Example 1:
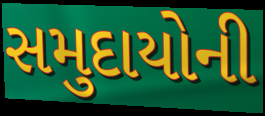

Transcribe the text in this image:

સમુદાયોની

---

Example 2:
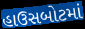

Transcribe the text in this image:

હાઉસબોટમાં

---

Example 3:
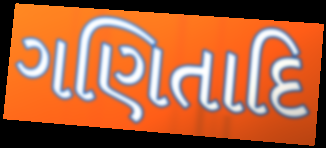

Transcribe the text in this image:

ગણિતાદિ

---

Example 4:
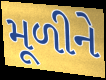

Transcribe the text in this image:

મૂળીને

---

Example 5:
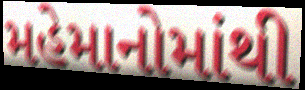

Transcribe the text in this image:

મહેમાનોમાંથી